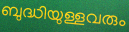
ബുദ്ധിയുള്ളവരും